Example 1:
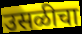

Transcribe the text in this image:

उसळीचा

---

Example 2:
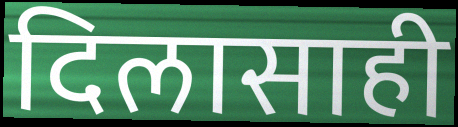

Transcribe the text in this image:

दिलासाही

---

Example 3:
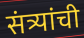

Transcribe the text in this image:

संत्र्यांची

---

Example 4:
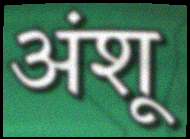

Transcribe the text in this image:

अंशू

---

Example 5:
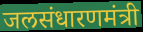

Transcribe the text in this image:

जलसंधारणमंत्री